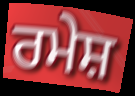
ਰਮੇਸ਼